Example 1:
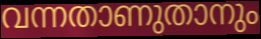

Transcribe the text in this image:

വന്നതാണുതാനും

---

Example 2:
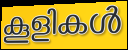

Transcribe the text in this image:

കൂളികൾ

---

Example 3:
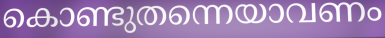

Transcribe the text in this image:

കൊണ്ടുതന്നെയാവണം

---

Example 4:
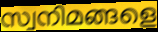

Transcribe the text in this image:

സ്വനിമങ്ങളെ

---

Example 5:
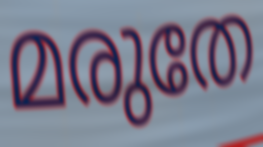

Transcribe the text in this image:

മരുതേ